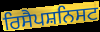
ਰਿਸੈਪਸ਼ਨਿਸਟ